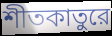
শীতকাতুরে